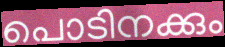
പൊടിനക്കും